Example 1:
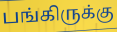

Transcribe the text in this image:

பங்கிருக்கு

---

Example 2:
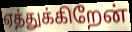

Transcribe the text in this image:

ஏத்துக்கிறேன்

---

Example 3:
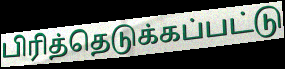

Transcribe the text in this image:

பிரித்தெடுக்கப்பட்டு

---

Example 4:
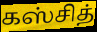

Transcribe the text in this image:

கஸ்சித்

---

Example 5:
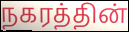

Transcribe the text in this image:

நகரத்தின்